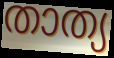
താത്യ